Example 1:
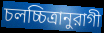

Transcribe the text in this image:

চলচ্চিত্রানুরাগী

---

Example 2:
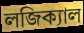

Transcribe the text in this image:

লজিক্যাল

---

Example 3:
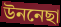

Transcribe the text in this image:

উননেছা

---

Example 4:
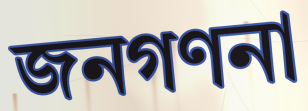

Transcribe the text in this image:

জনগণনা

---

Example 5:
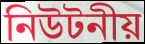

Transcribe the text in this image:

নিউটনীয়